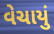
વેચાયું